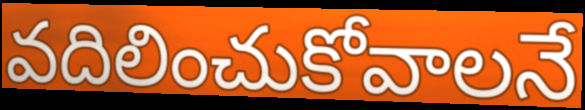
వదిలించుకోవాలనే